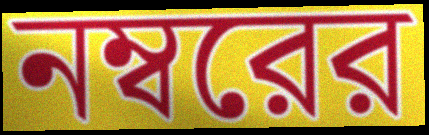
নম্বরের